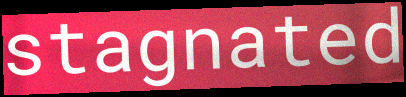
stagnated